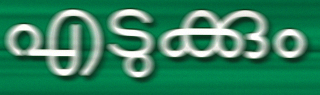
എടുക്കും